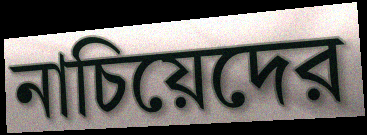
নাচিয়েদের